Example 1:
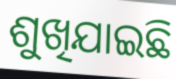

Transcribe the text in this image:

ଶୁଖିଯାଇଛି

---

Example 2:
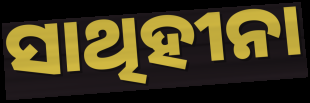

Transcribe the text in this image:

ସାଥିହୀନା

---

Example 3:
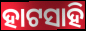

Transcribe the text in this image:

ହାଟସାହି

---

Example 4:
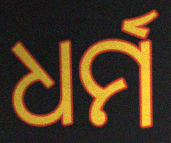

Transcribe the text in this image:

ଧର୍ମ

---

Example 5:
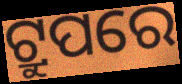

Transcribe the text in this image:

ଟ୍ରୁପରେ